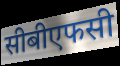
सीबीएफसी